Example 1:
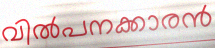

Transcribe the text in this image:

വിൽപനക്കാരൻ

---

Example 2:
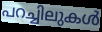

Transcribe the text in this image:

പറച്ചിലുകൾ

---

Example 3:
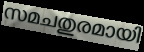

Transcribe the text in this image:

സമചതുരമായി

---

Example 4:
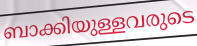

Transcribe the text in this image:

ബാക്കിയുള്ളവരുടെ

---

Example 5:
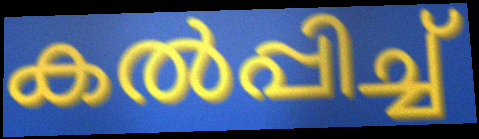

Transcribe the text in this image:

കൽപ്പിച്ച്